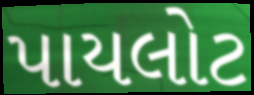
પાયલોટ